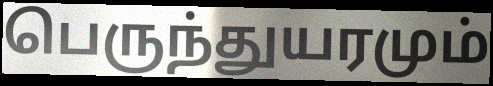
பெருந்துயரமும்